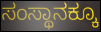
ಸಂಸ್ಥಾನಕ್ಕೂ